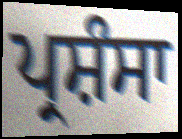
ਪ੍ਰਸ਼ੰਸਾ